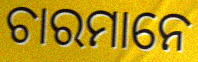
ଚାରମାନେ